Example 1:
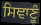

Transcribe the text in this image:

ਸਿਞਾਣੂੰ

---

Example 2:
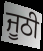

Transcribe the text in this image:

ਜੂਠੀ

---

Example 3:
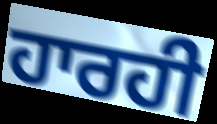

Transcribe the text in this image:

ਹਾਰਹੀ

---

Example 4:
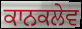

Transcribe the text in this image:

ਕਾਨਕਲੇਵ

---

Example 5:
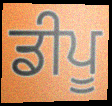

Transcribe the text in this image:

ਡੀਪੂ